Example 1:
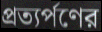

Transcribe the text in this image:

প্রত্যর্পণের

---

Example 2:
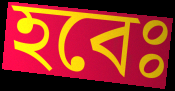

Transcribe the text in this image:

হবেঃ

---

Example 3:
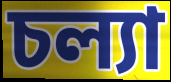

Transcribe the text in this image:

চল্যা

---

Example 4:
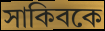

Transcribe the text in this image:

সাকিবকে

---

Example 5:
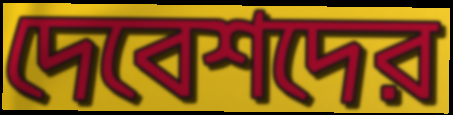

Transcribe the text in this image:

দেবেশদের